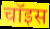
चॉइस